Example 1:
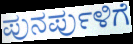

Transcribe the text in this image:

ಪುನರ್ಪುಳಿಗೆ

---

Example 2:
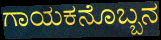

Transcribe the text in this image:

ಗಾಯಕನೊಬ್ಬನ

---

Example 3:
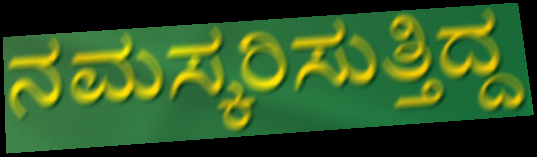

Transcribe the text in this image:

ನಮಸ್ಕರಿಸುತ್ತಿದ್ದ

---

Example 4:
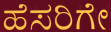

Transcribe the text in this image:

ಹೆಸರಿಗೇ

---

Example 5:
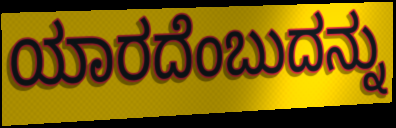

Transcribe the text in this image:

ಯಾರದೆಂಬುದನ್ನು